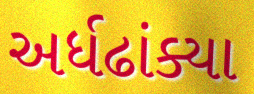
અર્ધઢાંક્યા